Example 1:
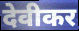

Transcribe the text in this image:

देवीकर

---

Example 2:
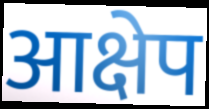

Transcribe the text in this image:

आक्षेप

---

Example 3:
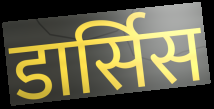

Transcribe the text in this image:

डार्सिस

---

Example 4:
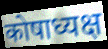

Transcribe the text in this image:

कोषाध्यक्ष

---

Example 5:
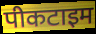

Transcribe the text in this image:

पीकटाइम